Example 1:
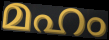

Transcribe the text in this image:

മഹം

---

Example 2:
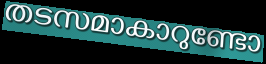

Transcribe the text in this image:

തടസമാകാറുണ്ടോ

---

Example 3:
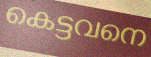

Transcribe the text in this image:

കെട്ടവനെ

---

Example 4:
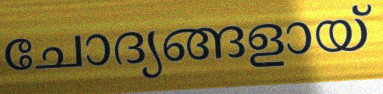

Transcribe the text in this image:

ചോദ്യങ്ങളായ്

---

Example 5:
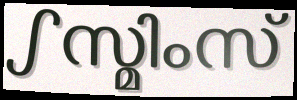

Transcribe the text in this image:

ഽസ്മിംസ്